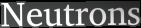
Neutrons